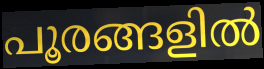
പൂരങ്ങളിൽ